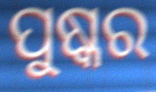
ପୁଷ୍କର